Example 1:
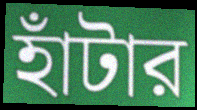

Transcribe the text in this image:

হাঁটার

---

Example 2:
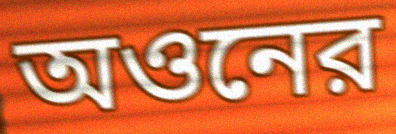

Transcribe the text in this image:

অওনের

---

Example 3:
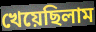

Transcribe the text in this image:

খেয়েছিলাম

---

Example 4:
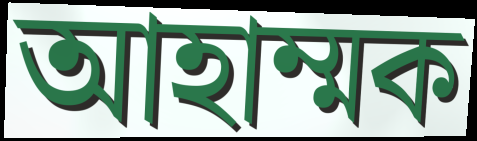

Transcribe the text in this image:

আহাম্মক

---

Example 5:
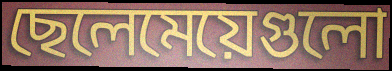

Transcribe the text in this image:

ছেলেমেয়েগুলো